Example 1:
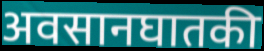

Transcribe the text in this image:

अवसानघातकी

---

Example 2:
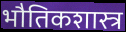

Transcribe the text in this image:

भौतिकशास्त्र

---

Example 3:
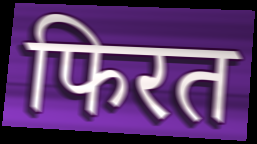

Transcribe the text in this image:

फिरत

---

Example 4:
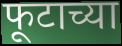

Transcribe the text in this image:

फूटाच्या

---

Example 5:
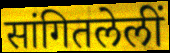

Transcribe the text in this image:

सांगितलेलीं